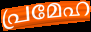
പ്രമേഹ